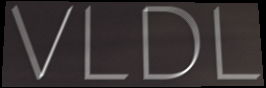
VLDL